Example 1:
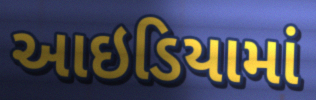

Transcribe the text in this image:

આઇડિયામાં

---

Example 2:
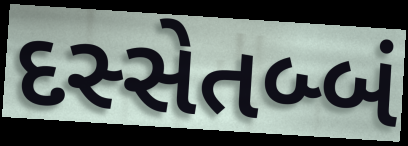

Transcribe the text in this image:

દસ્સેતબ્બં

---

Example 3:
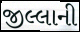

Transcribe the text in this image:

જીલ્લાની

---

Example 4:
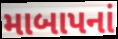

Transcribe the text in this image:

માબાપનાં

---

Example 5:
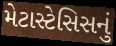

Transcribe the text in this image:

મેટાસ્ટેસિસનું